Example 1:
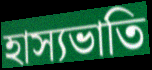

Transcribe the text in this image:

হাস্যভাতি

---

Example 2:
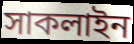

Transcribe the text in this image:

সাকলাইন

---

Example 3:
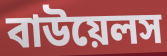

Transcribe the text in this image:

বাউয়েলস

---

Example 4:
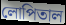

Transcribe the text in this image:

লোপিতাল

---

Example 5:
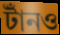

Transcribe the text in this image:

টাঁনও